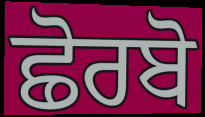
ਛੋਰਬੋ